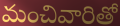
మంచివారితో